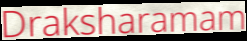
Draksharamam